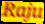
Raju